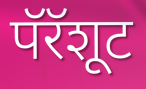
पॅरॅशूट